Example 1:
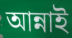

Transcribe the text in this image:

আন্নাই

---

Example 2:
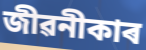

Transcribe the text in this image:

জীৱনীকাৰ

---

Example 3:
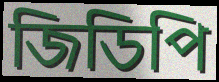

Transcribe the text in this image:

জিডিপি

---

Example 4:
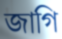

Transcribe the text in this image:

জাগি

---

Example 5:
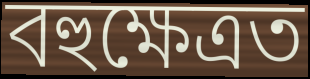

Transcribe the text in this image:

বহুক্ষেত্ৰত